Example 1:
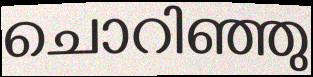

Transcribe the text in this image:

ചൊറിഞ്ഞു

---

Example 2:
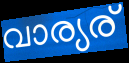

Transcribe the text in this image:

വാര്യര്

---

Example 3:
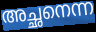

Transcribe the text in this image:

അച്ഛനെന്ന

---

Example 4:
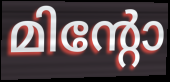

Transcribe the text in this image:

മിന്റോ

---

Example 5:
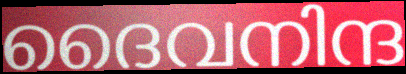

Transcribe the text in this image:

ദൈവനിന്ദ